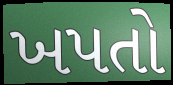
ખપતો